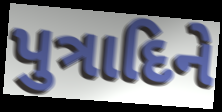
પુત્રાદિને